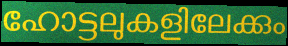
ഹോട്ടലുകളിലേക്കും